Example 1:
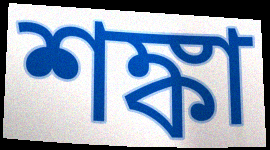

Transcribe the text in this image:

শঙ্কা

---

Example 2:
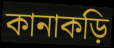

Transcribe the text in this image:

কানাকড়ি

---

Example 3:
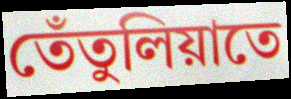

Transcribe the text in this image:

তেঁতুলিয়াতে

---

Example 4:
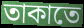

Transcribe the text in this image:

তাকাতে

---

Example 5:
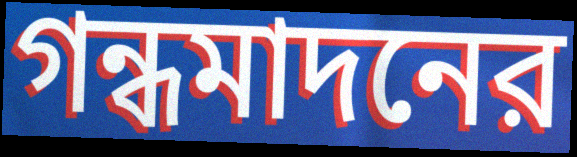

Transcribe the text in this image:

গন্ধমাদনের